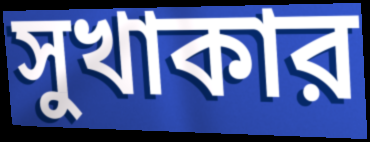
সুখাকার